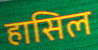
हासिल